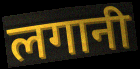
लगानी